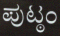
ಪುಟ್ಠಂ